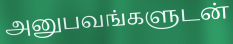
அனுபவங்களுடன்